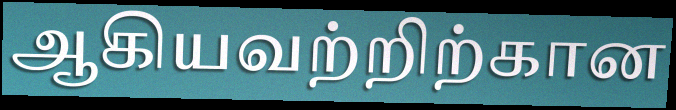
ஆகியவற்றிற்கான